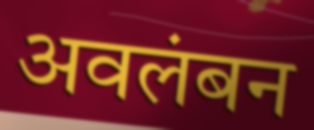
अवलंबन